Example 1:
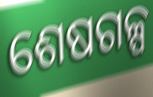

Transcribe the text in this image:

ଶେଷଗଳ୍ପ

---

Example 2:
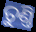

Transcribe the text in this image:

ତୁଣ୍ତି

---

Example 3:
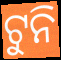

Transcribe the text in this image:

ଟୁନି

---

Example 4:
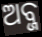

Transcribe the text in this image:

ଅବ୍ଜ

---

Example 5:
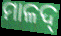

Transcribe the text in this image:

ମାଳଦ୍